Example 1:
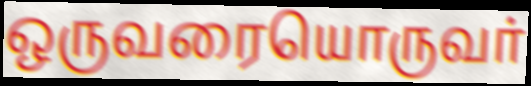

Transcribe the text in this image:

ஒருவரையொருவர்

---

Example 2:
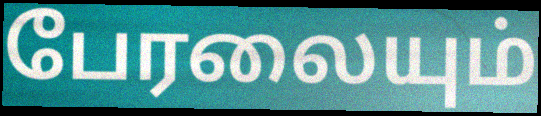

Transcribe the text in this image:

பேரலையும்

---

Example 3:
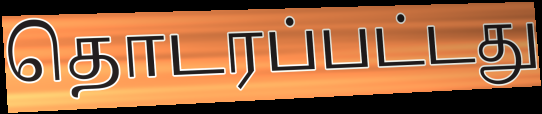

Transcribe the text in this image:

தொடரப்பட்டது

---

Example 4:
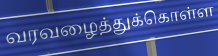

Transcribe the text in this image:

வரவழைத்துக்கொள்ள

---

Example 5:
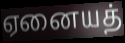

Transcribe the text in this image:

ஏனையத்